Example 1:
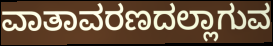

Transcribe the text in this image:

ವಾತಾವರಣದಲ್ಲಾಗುವ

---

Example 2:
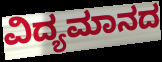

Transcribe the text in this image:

ವಿದ್ಯಮಾನದ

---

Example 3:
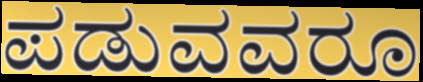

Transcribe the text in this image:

ಪಡುವವರೂ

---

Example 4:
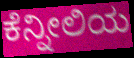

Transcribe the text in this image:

ಕೆನ್ನೀಲಿಯ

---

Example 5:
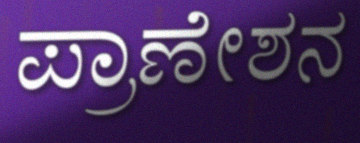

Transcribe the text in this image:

ಪ್ರಾಣೇಶನ